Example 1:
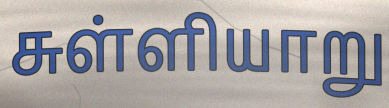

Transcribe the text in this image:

சுள்ளியாறு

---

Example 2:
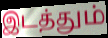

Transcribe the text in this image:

இடத்தும்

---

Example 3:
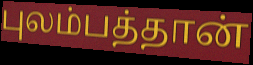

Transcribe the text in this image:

புலம்பத்தான்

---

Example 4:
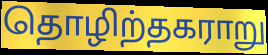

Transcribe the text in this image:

தொழிற்தகராறு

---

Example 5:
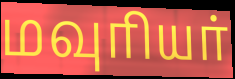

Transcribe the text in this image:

மவுரியர்